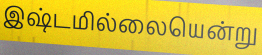
இஷ்டமில்லையென்று